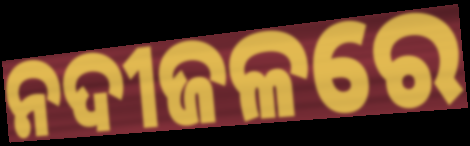
ନଦୀଜଳରେ